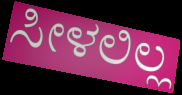
ಸೀಳಲಿಲ್ಲ